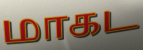
மாகட